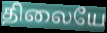
திலையே